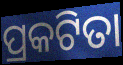
ପ୍ରକଟିତା